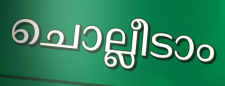
ചൊല്ലീടാം